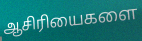
ஆசிரியைகளை